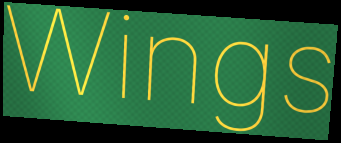
Wings